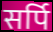
सर्पि